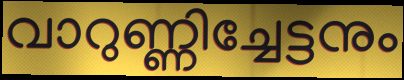
വാറുണ്ണിച്ചേട്ടനും